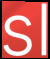
sl